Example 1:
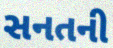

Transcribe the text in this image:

સનતની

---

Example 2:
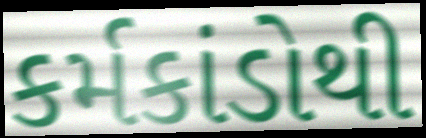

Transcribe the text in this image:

કર્મકાંડોથી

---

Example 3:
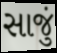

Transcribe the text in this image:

સાજું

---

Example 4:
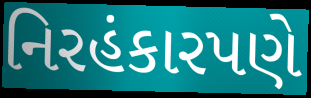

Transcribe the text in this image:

નિરહંકારપણે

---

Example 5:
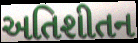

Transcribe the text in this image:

અતિશીતન